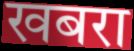
खबरा